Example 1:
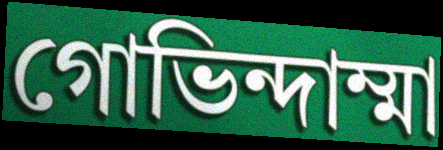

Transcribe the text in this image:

গোভিন্দাম্মা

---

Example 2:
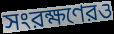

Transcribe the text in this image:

সংরক্ষণেরও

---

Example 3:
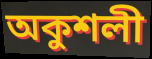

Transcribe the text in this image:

অকুশলী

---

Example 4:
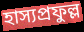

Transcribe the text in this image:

হাস্যপ্রফুল্ল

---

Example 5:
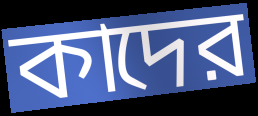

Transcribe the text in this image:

কাদের